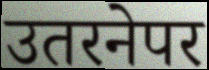
उतरनेपर